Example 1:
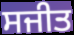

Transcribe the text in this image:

ਸਜੀਤ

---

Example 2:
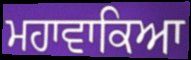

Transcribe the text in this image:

ਮਹਾਵਾਕਿਆ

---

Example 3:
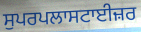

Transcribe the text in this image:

ਸੁਪਰਪਲਾਸਟਾਈਜ਼ਰ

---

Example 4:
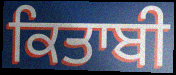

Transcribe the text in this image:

ਕਿਤਾਬੀ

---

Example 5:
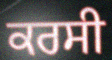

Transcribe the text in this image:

ਕਰਸੀ